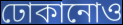
ঢোকানোও